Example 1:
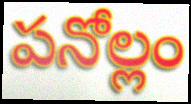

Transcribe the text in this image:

పనోల్లం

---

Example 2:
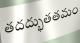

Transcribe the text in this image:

తదద్భుతతమం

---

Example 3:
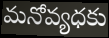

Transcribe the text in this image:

మనోవ్యధకు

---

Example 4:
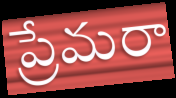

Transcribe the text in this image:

ప్రేమరా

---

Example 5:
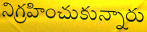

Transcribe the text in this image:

నిగ్రహించుకున్నారు